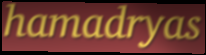
hamadryas